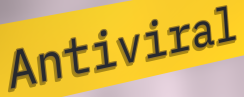
Antiviral